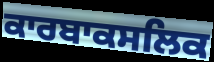
ਕਾਰਬਾਕਸਲਿਕ